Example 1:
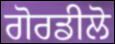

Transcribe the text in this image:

ਗੋਰਡੀਲੋ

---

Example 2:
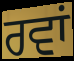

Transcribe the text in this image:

ਰਵਾਂ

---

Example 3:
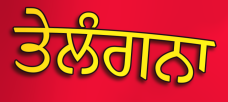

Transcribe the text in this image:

ਤੇਲੰਗਨਾ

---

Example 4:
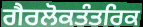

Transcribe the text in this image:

ਗੈਰਲੋਕਤੰਤਰਿਕ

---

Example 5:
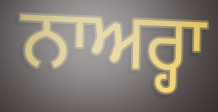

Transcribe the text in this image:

ਨਾਅਰ੍ਹਾ